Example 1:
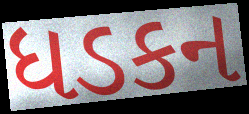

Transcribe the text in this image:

ધડકન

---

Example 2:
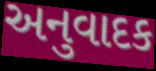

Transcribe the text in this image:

અનુવાદક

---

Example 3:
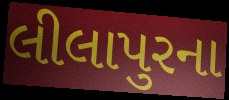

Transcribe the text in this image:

લીલાપુરના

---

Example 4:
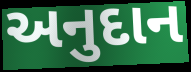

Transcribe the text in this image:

અનુદાન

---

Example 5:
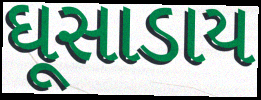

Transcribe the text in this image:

ઘૂસાડાય